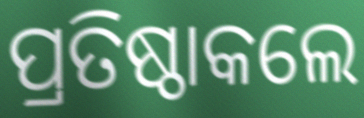
ପ୍ରତିଷ୍ଠାକଲେ